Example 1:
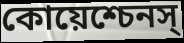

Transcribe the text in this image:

কোয়েশ্চেনস্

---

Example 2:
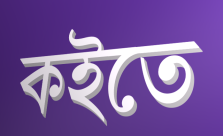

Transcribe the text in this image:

কইতে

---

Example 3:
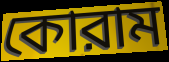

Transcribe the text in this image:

কোরাম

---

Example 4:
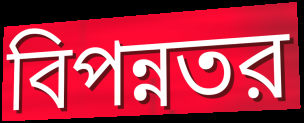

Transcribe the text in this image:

বিপন্নতর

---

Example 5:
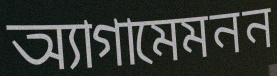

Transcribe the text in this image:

অ্যাগামেমনন